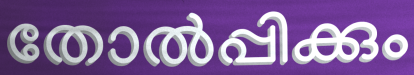
തോൽപ്പിക്കും